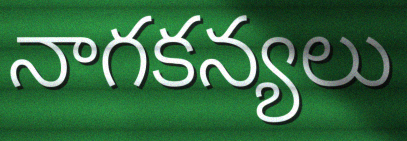
నాగకన్యలు